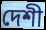
দেশী